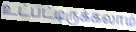
உட்பட்டிருக்கலாம்